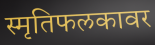
स्मृतिफलकावर